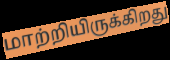
மாற்றியிருக்கிறது